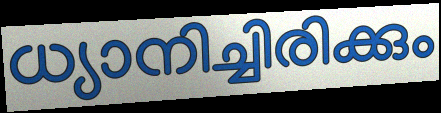
ധ്യാനിച്ചിരിക്കും